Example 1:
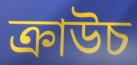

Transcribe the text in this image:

ক্রাউচ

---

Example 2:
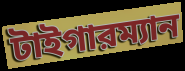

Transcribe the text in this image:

টাইগারম্যান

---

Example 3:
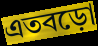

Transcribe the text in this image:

এতবড়ো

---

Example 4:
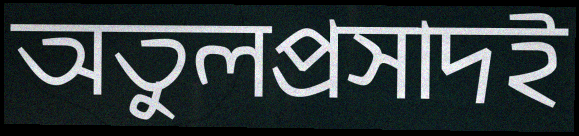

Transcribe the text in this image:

অতুলপ্রসাদই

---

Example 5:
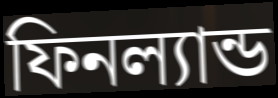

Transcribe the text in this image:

ফিনল্যান্ড